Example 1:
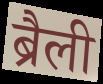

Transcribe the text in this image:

ब्रैली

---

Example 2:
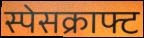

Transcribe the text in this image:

स्पेसक्राफ्ट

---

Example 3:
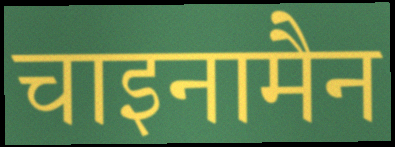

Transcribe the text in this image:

चाइनामैन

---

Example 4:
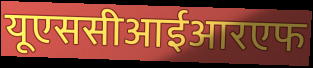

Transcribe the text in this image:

यूएससीआईआरएफ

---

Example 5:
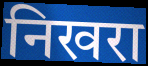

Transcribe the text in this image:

निखरा